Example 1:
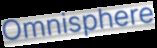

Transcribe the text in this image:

Omnisphere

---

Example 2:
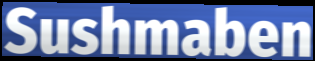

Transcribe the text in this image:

Sushmaben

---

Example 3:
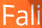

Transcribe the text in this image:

Fali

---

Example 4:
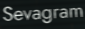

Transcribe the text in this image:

Sevagram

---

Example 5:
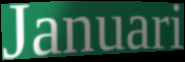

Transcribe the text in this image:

Januari